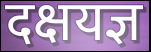
दक्षयज्ञ